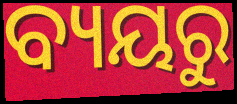
ବ୍ୟୟରୁ